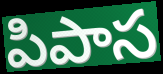
పిపాస